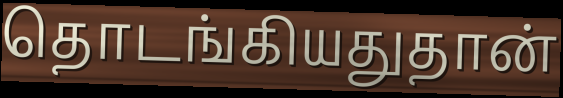
தொடங்கியதுதான்